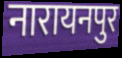
नारायनपुर